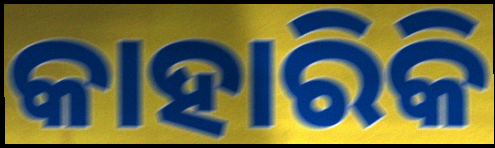
କାହାରିକି